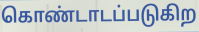
கொண்டாடப்படுகிற